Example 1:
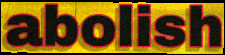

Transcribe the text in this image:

abolish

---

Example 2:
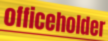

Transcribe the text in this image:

officeholder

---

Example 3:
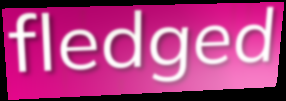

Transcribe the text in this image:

fledged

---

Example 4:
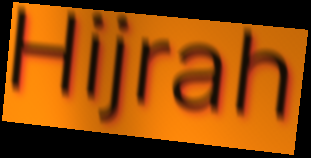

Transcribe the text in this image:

Hijrah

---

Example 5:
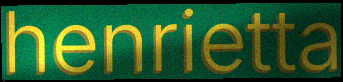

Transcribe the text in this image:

henrietta